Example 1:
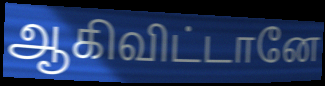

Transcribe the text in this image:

ஆகிவிட்டானே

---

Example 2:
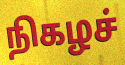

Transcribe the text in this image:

நிகழச்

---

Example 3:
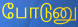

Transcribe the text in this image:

போடுனு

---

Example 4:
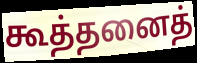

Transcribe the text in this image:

கூத்தனைத்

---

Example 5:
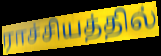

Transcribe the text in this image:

ராச்சியத்தில்